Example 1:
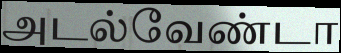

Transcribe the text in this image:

அடல்வேண்டா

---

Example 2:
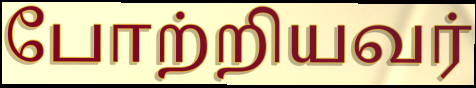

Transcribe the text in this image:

போற்றியவர்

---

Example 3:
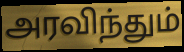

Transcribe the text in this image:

அரவிந்தும்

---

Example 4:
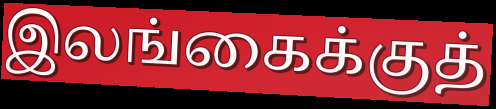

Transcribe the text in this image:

இலங்கைக்குத்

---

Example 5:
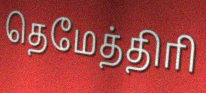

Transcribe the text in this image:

தெமேத்திரி